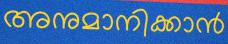
അനുമാനിക്കാൻ